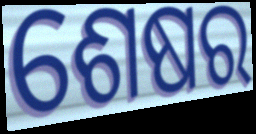
ଶେଷର